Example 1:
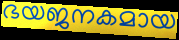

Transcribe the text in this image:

ഭയജനകമായ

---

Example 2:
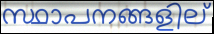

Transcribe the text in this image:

സ്ഥാപനങ്ങളില്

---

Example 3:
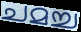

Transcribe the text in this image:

ചമച്ച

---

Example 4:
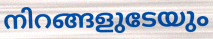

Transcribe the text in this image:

നിറങ്ങളുടേയും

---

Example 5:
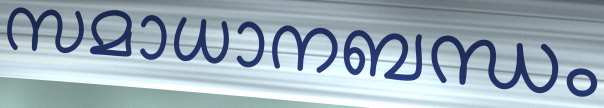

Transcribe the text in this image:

സമാധാനബന്ധം